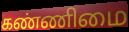
கண்ணிமை